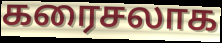
கரைசலாக